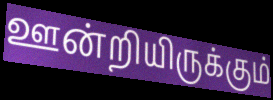
ஊன்றியிருக்கும்